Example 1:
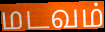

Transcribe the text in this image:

மடவம்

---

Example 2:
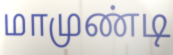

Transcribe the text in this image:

மாமுண்டி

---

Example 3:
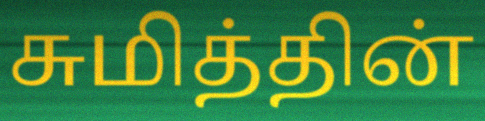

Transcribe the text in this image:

சுமித்தின்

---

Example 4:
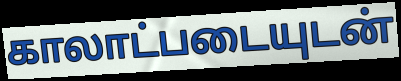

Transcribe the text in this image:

காலாட்படையுடன்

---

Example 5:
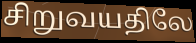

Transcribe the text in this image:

சிறுவயதிலே